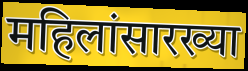
महिलांसारख्या